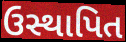
ઉસ્થાપિત